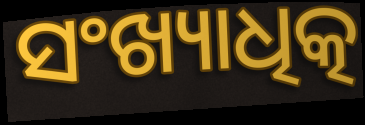
ସଂଖ୍ୟାଧିତ୍କ